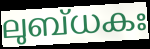
ലുബ്ധകഃ